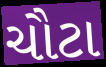
ચૌટા